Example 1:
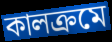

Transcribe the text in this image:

কালক্রমে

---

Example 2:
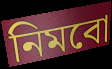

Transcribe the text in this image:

নিমবো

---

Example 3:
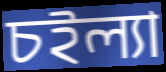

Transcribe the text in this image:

চইল্যা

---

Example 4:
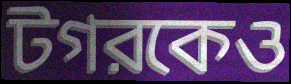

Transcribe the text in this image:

টগরকেও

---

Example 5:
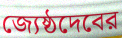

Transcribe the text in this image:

জ্যেষ্ঠদেবের